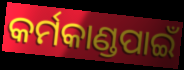
କର୍ମକାଣ୍ଡପାଇଁ